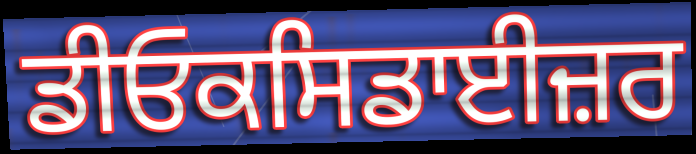
ਡੀਓਕਸਿਡਾਈਜ਼ਰ